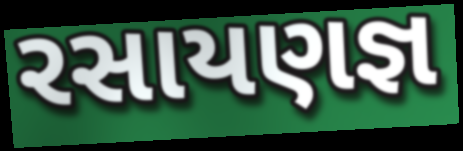
રસાયણજ્ઞ